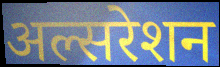
अल्सरेशन